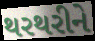
થરથરીને